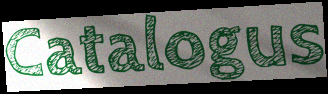
Catalogus